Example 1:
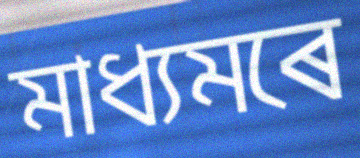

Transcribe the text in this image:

মাধ্যমৰে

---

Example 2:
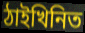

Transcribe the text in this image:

ঠাইখিনিত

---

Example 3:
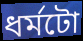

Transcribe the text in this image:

ধৰ্মটো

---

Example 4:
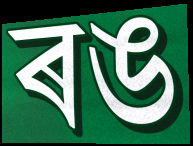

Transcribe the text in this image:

ৰঙ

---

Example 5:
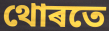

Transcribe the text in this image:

থোৰতে